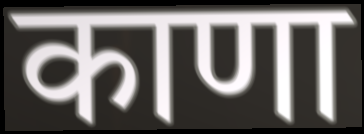
काणा